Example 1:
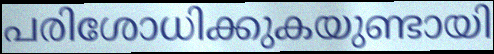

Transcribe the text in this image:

പരിശോധിക്കുകയുണ്ടായി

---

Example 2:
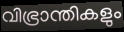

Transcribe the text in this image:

വിഭ്രാന്തികളും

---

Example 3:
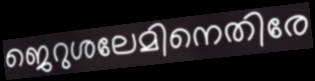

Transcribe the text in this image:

ജെറുശലേമിനെതിരേ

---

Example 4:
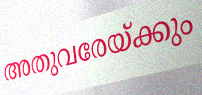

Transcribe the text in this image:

അതുവരേയ്ക്കും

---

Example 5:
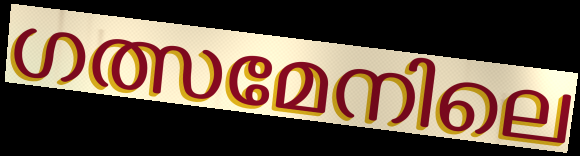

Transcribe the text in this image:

ഗത്സമേനിലെ